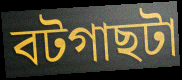
বটগাছটা